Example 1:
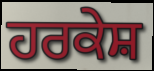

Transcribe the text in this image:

ਹਰਕੇਸ਼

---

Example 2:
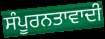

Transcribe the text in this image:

ਸੰਪੂਰਨਤਾਵਾਦੀ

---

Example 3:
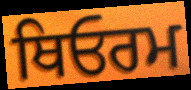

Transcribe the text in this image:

ਥਿਓਰਮ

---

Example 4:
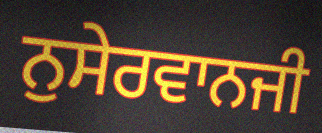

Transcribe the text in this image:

ਨੁਸੇਰਵਾਨਜੀ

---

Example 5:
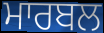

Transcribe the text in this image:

ਮਾਰਬਲ